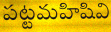
పట్టమహిషివి